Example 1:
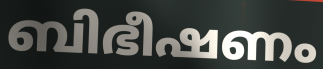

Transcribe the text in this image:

ബിഭീഷണം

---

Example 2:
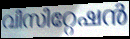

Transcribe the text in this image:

വിസിറ്റേഷൻ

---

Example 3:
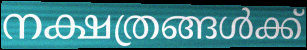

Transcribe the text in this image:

നക്ഷത്രങ്ങൾക്ക്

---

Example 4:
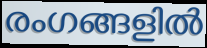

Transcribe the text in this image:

രംഗങ്ങളിൽ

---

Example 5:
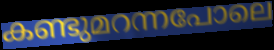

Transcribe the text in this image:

കണ്ടുമറന്നപോലെ